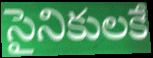
సైనికులకే